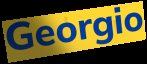
Georgio